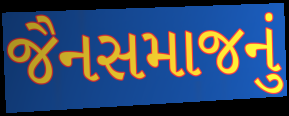
જૈનસમાજનું